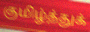
குமிழ்த்துக்